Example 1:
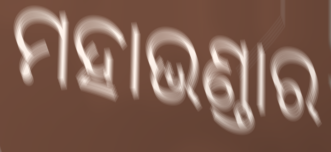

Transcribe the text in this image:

ମହାଭଣ୍ଡାର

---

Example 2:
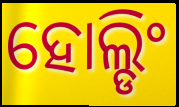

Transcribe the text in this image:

ହୋଲ୍ଡିଂ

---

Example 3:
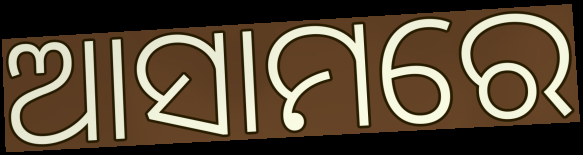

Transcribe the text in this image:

ଆସାମରେ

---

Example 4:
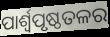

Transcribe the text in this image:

ପାର୍ଶ୍ଵପୃଷ୍ଠତଳର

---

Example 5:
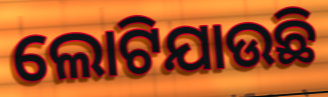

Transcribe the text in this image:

ଲୋଟିଯାଉଛି